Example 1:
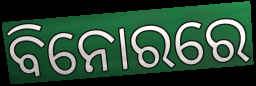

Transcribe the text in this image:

ବିନୋରରେ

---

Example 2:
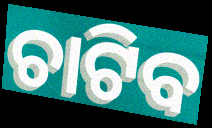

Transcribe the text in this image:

ଚାଟିବ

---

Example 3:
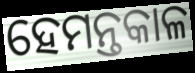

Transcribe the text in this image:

ହେମନ୍ତକାଳ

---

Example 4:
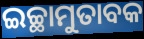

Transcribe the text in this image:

ଇଚ୍ଛାମୁତାବକ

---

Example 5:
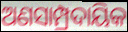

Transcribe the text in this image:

ଅଣସାମ୍ପ୍ରଦାୟିକ